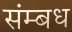
संम्बध